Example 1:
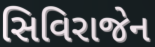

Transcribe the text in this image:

સિવિરાજેન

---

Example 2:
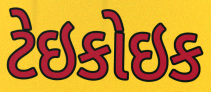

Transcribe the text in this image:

ટેઇકોઇક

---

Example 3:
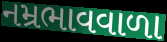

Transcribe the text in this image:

નમ્રભાવવાળા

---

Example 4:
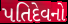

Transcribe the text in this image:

પતિદેવનો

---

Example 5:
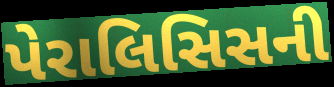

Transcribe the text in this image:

પેરાલિસિસની